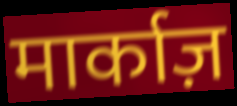
मार्काज़